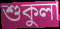
শুকুলা